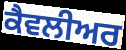
ਕੈਵਲੀਅਰ